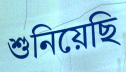
শুনিয়েছি